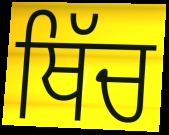
ਥਿੱਚ